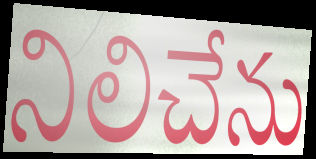
నిలిచేను